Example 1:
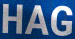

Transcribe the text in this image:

HAG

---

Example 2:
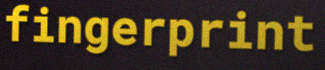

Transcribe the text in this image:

fingerprint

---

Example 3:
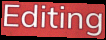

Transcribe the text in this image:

Editing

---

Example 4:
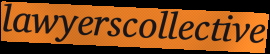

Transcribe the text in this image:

lawyerscollective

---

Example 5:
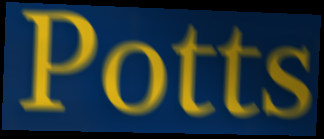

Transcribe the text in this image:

Potts